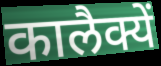
कालैक्यें